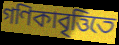
গণিকাবৃত্তিতে